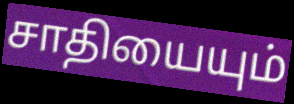
சாதியையும்